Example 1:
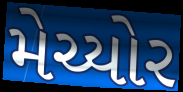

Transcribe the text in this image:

મેચ્યોર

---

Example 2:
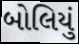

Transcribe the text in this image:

બોલિયું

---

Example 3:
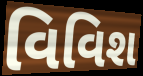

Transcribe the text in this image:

વિવિશ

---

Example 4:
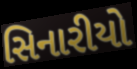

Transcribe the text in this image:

સિનારીયો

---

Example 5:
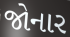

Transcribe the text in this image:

જોનાર